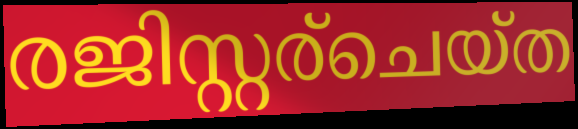
രജിസ്റ്റര്ചെയ്ത